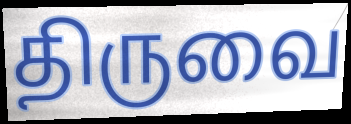
திருவை